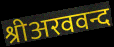
श्रीअरववन्द